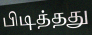
பிடித்தது